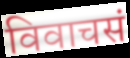
विवाचसं